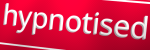
hypnotised